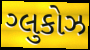
ગ્લુકોઝ